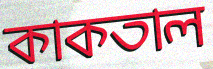
কাকতাল